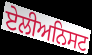
ਏਲੀਅਨਿਸਟ